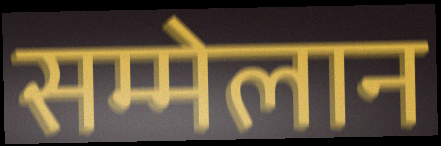
सम्मेलान